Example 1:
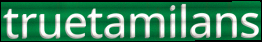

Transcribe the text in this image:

truetamilans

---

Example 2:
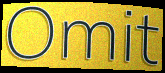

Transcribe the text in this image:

Omit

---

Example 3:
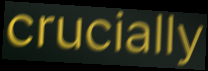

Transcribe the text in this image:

crucially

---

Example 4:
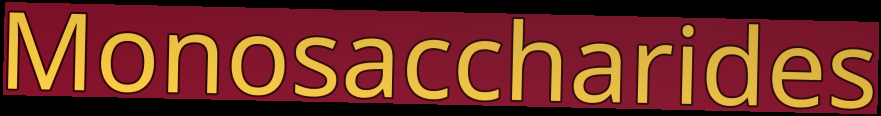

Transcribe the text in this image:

Monosaccharides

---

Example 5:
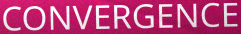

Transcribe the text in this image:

CONVERGENCE